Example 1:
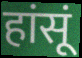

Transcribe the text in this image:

हांसूं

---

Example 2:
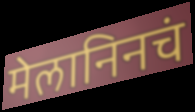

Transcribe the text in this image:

मेलानिनचं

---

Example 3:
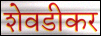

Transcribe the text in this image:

शेवडीकर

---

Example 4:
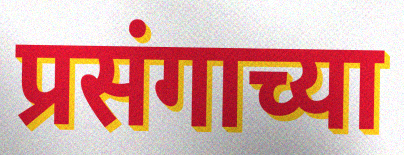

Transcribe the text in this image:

प्रसंगाच्या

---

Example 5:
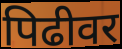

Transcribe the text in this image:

पिढीवर